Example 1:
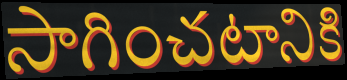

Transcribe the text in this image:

సాగించటానికి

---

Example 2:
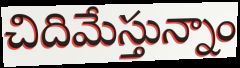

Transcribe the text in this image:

చిదిమేస్తున్నాం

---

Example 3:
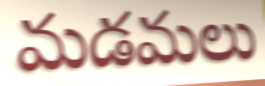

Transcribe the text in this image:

మడమలు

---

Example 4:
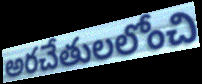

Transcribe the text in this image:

అరచేతులలోంచి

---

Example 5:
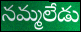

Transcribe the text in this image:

నమ్మలేడు